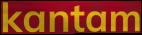
kantam